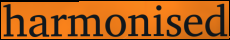
harmonised